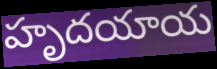
హృదయాయ